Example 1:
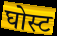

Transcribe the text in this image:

घोस्‍ट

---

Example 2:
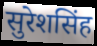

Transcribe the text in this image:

सुरेशसिंह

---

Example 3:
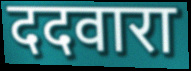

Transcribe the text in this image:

ददवारा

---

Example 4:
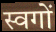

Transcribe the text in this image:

स्वगों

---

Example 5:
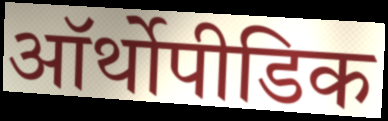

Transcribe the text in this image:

ऑर्थोपीडिक